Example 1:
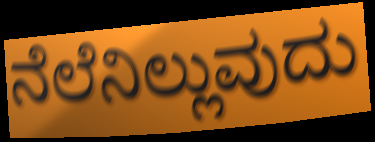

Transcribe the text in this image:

ನೆಲೆನಿಲ್ಲುವುದು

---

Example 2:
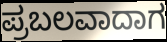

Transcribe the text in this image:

ಪ್ರಬಲವಾದಾಗ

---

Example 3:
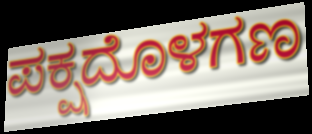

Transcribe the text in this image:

ಪಕ್ಷದೊಳಗಣ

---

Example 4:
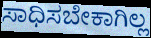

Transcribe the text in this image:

ಸಾಧಿಸಬೇಕಾಗಿಲ್ಲ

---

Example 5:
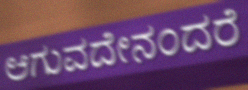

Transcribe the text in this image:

ಆಗುವದೇನಂದರೆ